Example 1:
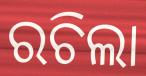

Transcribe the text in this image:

ରଚିଲା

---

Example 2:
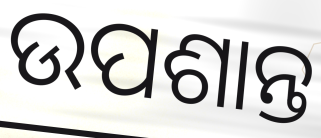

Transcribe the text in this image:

ଉପଶାନ୍ତ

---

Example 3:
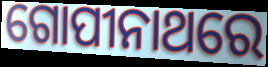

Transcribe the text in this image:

ଗୋପୀନାଥରେ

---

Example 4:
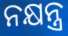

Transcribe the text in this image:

ନକ୍ଷନ୍ତ୍ର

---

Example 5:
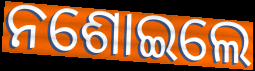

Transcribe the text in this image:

ନଶୋଇଲେ